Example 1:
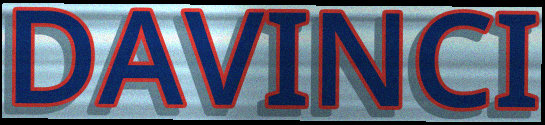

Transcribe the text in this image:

DAVINCI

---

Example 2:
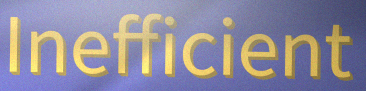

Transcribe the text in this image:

Inefficient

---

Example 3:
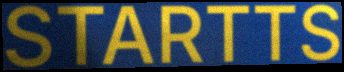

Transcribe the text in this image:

STARTTS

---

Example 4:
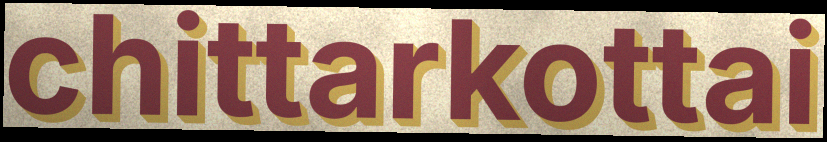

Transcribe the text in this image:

chittarkottai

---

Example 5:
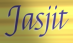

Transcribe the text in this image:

Jasjit